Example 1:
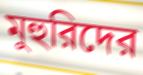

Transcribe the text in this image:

মুহুরিদের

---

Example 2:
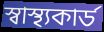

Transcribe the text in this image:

স্বাস্থ্যকার্ড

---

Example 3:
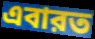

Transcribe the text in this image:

এবারত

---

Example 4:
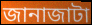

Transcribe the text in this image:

জানাজাটা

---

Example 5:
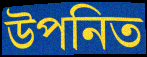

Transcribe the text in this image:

উপনিত